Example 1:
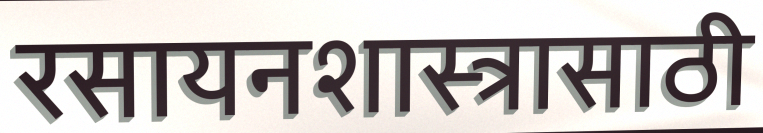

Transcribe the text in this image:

रसायनशास्त्रासाठी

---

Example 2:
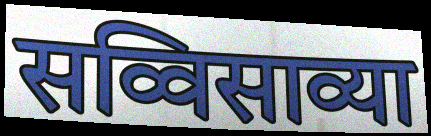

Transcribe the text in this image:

सव्विसाव्या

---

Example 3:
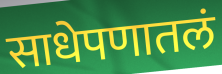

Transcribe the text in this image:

साधेपणातलं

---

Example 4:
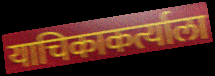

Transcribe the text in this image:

याचिकाकर्त्याला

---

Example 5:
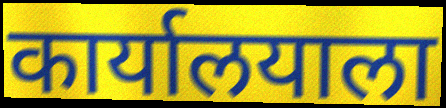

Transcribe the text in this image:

कार्यालयाला